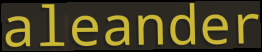
aleander